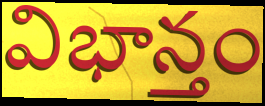
విభాన్తం